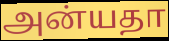
அன்யதா